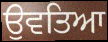
ਉਵਤਿਆ